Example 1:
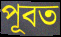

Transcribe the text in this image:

পূবত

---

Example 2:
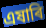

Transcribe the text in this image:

এষাৰি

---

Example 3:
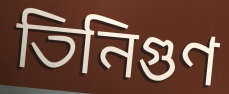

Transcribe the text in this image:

তিনিগুণ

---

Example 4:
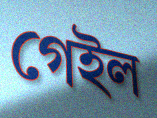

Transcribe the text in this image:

গেইল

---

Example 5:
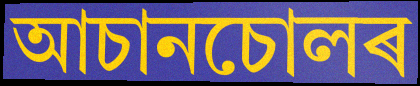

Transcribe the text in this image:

আচানচোলৰ